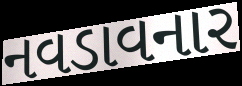
નવડાવનાર